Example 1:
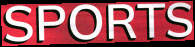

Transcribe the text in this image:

SPORTS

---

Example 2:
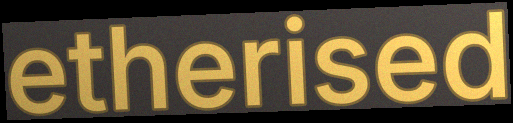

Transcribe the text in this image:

etherised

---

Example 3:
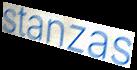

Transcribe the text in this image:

stanzas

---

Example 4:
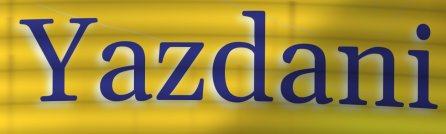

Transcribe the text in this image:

Yazdani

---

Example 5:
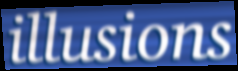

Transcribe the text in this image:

illusions